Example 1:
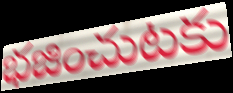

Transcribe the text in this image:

భజించుటకు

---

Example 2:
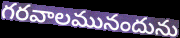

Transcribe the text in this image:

గరవాలమునందును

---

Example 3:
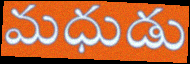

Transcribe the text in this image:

మధుడు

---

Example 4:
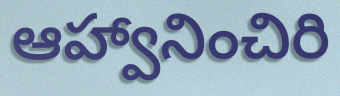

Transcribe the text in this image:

ఆహ్వానించిరి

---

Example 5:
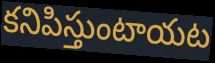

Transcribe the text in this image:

కనిపిస్తుంటాయట